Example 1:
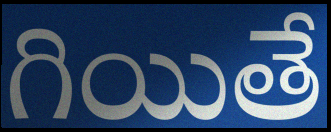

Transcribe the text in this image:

గియితే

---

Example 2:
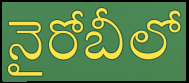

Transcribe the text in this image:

నైరోబీలో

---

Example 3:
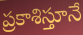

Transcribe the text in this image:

ప్రకాశిస్తూనే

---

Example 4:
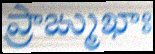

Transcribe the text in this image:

ప్రాఙ్ముఖాః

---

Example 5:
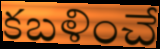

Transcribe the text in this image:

కబళించే